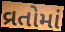
વ્રતોમાં